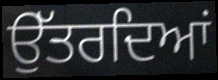
ਉੱਤਰਦਿਆਂ